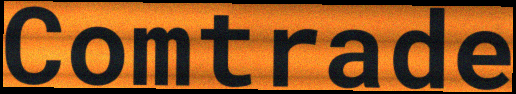
Comtrade